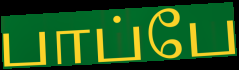
பாப்பே